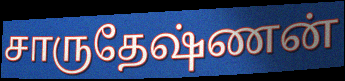
சாருதேஷ்ணன்